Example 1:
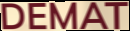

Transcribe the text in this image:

DEMAT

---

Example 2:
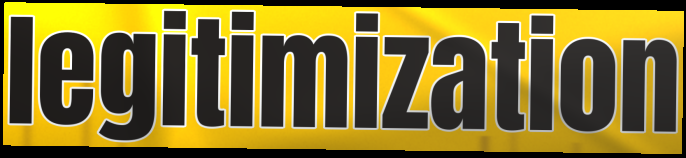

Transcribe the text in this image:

legitimization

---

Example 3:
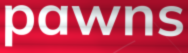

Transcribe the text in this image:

pawns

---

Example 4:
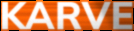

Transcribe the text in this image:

KARVE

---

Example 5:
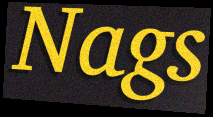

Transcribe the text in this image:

Nags